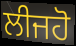
ਲੀਜਹੋ